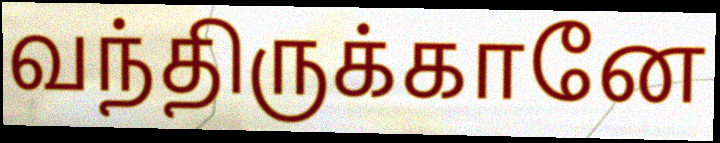
வந்திருக்கானே